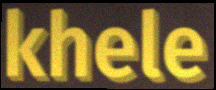
khele